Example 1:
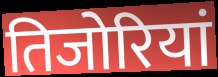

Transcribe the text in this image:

तिजोरियां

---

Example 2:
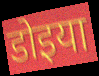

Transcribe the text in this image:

डोइया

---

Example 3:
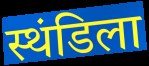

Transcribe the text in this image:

स्थंडिला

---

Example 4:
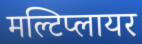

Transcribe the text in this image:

मल्टिप्लायर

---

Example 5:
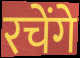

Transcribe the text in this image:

रचेंगे